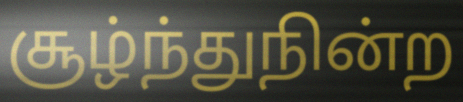
சூழ்ந்துநின்ற